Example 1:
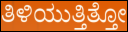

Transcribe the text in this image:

ತಿಳಿಯುತ್ತಿತ್ತೋ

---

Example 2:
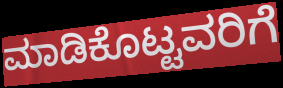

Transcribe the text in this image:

ಮಾಡಿಕೊಟ್ಟವರಿಗೆ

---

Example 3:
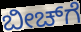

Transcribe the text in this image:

ಬೀಚ್‌ಗೆ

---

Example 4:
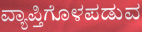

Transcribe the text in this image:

ವ್ಯಾಪ್ತಿಗೊಳಪಡುವ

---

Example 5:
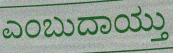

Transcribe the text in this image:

ಎಂಬುದಾಯ್ತು